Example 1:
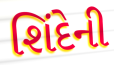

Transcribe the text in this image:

શિંદેની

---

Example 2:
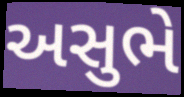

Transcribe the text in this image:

અસુભે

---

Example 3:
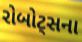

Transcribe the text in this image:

રોબોટ્સના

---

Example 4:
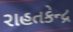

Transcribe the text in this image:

રાહતકેન્દ્ર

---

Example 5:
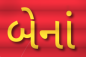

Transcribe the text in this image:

બેનાં